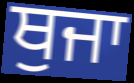
ਥੁਜਾ